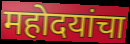
महोदयांचा